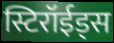
स्टिरॉईड्स